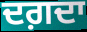
ਦਗ਼ਦਾ